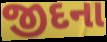
જીદના